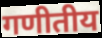
गणीतीय